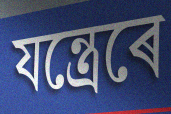
যন্ত্ৰেৰে